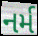
નર્મ